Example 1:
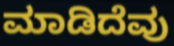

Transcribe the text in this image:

ಮಾಡಿದೆವು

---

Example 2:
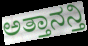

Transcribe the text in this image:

ಅತ್ತಾನನ್ತಿ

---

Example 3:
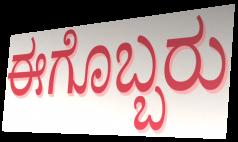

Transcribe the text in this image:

ಈಗೊಬ್ಬರು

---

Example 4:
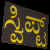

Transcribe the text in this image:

ಸ್ವಿಪ್ಟ್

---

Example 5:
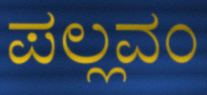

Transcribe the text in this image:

ಪಲ್ಲವಂ